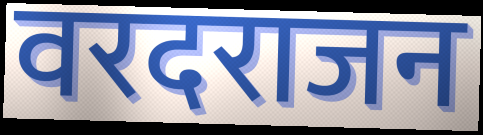
वरदराजन